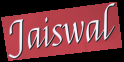
Jaiswal